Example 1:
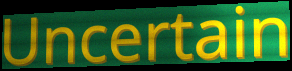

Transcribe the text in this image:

Uncertain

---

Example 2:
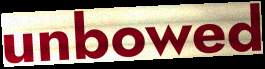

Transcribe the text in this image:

unbowed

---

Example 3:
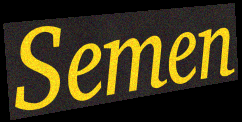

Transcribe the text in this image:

Semen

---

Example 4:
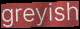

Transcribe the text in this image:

greyish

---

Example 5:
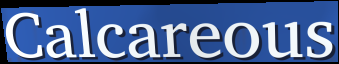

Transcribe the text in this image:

Calcareous